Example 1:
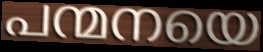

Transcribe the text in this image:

പന്മനയെ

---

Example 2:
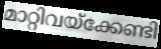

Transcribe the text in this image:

മാറ്റിവയ്ക്കേണ്ടി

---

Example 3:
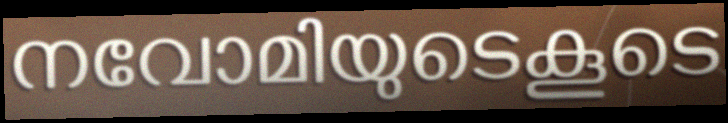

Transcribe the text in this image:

നവോമിയുടെകൂടെ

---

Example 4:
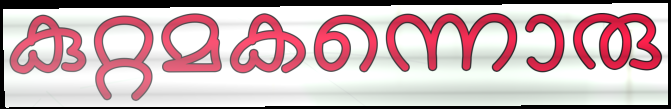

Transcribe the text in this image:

കുറ്റമകന്നൊരു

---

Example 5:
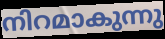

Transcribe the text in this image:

നിറമാകുന്നു